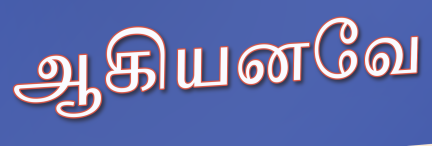
ஆகியனவே